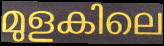
മുളകിലെ